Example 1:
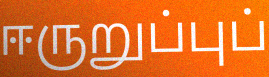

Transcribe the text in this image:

ஈருறுப்புப்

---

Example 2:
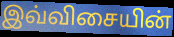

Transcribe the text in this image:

இவ்விசையின்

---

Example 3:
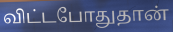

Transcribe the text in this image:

விட்டபோதுதான்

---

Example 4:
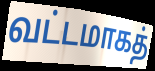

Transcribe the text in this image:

வட்டமாகத்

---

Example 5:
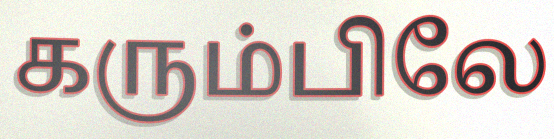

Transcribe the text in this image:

கரும்பிலே